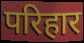
परिहार